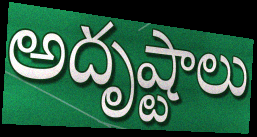
అదృష్టాలు